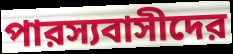
পারস্যবাসীদের